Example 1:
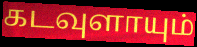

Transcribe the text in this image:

கடவுளாயும்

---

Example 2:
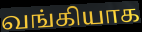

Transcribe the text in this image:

வங்கியாக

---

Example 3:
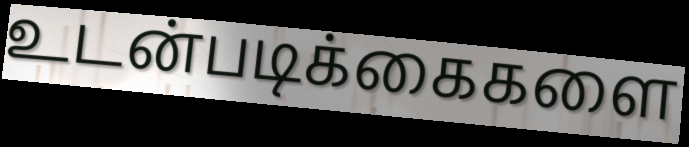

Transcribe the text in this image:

உடன்படிக்கைகளை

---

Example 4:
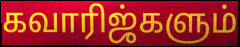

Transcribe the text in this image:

கவாரிஜ்களும்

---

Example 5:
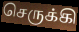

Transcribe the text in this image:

செருக்கி